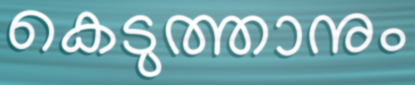
കെടുത്താനും